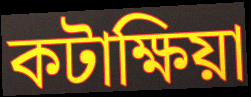
কটাক্ষিয়া